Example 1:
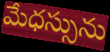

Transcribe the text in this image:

మేధస్సును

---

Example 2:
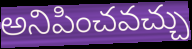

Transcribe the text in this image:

అనిపించవచ్చు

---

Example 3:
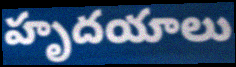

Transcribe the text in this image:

హృదయాలు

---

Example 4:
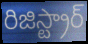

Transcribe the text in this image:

రిజిస్ట్రార్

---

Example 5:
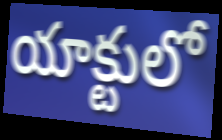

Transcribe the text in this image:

యాక్టులో